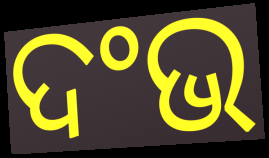
ଦଂଭ